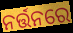
ନର୍ତ୍ତନରେ